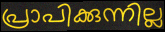
പ്രാപിക്കുന്നില്ല